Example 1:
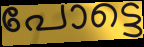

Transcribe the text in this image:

പോട്ടെ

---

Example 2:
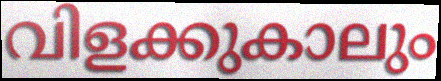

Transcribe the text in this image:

വിളക്കുകാലും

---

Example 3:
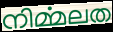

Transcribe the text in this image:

നിൎമ്മലത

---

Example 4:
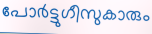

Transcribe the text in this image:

പോർട്ടുഗീസുകാരും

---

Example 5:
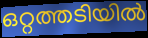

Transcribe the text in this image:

ഒറ്റത്തടിയിൽ